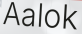
Aalok